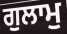
ਗੁਲਾਮੁ